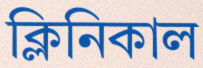
ক্লিনিকাল